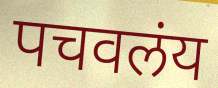
पचवलंय